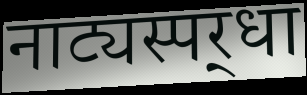
नाट्यस्पर्धा